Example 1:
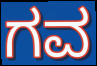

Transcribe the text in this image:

ಗವ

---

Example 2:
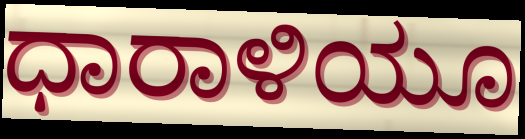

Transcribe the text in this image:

ಧಾರಾಳಿಯೂ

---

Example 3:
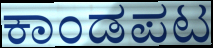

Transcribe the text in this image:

ಕಾಂಡಪಟ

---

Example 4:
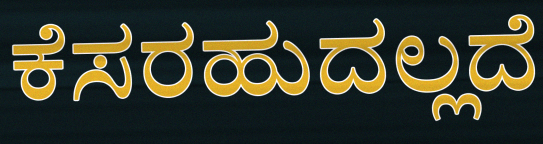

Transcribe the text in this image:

ಕೆಸರಹುದಲ್ಲದೆ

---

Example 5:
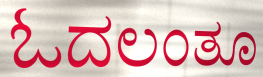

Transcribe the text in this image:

ಓದಲಂತೂ